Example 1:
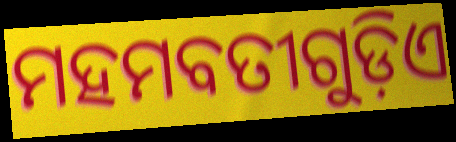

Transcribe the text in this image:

ମହମବତୀଗୁଡ଼ିଏ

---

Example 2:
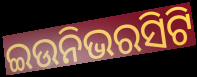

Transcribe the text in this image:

ଇଉନିଭରସିଟି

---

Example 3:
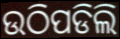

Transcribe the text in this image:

ଉଠିପଡିଲି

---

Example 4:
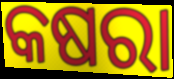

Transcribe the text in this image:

କଷରା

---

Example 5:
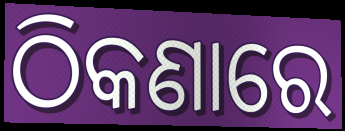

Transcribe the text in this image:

ଠିକଣାରେ